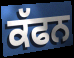
ਕੱਫਨ